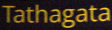
Tathagata